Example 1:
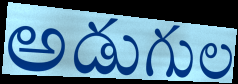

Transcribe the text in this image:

అడుగుల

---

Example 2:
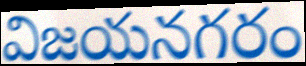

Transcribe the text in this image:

విజయనగరం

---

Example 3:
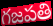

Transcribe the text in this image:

గజపతి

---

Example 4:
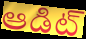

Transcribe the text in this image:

ఆడిట్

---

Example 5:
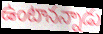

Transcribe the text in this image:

ఉంటానన్నాడు